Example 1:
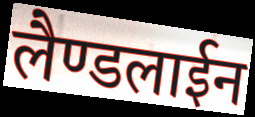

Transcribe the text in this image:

लैण्डलाईन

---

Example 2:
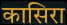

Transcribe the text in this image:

कासिरा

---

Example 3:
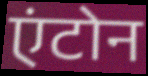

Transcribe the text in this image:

एंटोन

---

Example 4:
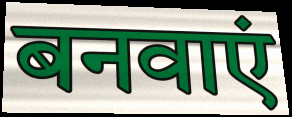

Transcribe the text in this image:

बनवाएं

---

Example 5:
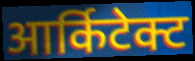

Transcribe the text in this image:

आर्किटेक्ट